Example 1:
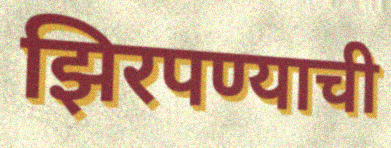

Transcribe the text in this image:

झिरपण्याची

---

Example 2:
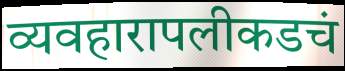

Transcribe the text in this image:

व्यवहारापलीकडचं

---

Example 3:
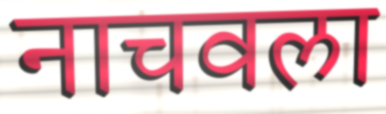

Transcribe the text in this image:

नाचवला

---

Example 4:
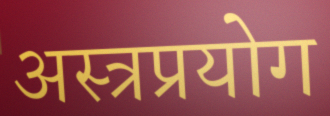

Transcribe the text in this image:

अस्त्रप्रयोग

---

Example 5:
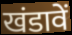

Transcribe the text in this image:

खंडावें